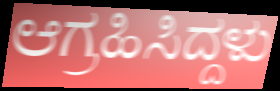
ಆಗ್ರಹಿಸಿದ್ದಳು